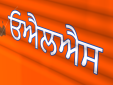
ਓਐਲਐਸ